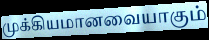
முக்கியமானவையாகும்